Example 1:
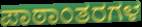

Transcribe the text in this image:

ಪಾಠಾಂತರಗಳ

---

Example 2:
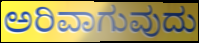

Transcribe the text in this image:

ಅರಿವಾಗುವುದು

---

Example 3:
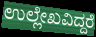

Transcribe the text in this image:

ಉಲ್ಲೇಖವಿದ್ದರೆ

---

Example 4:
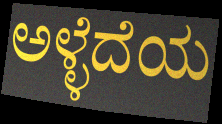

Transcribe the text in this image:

ಅಳ್ಳೆದೆಯ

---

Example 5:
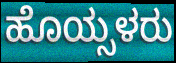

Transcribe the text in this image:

ಹೊಯ್ಸಳರು